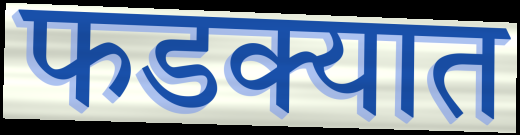
फडक्‍यात